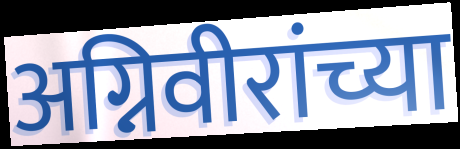
अग्निवीरांच्या